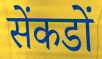
सेंकडों